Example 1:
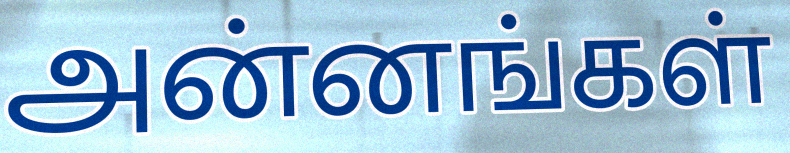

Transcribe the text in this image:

அன்னங்கள்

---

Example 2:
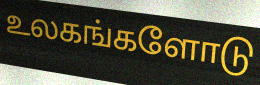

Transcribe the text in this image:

உலகங்களோடு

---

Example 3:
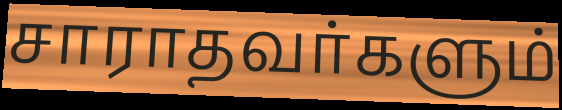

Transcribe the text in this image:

சாராதவர்களும்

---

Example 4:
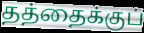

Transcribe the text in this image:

தத்தைக்குப்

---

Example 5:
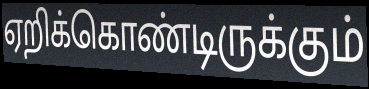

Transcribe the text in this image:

ஏறிக்கொண்டிருக்கும்